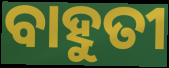
ବାହୁତୀ